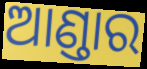
ଆଣ୍ଡାର